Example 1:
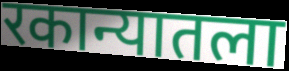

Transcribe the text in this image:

रकान्यातला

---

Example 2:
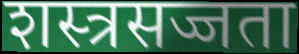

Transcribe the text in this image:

शस्त्रसज्जता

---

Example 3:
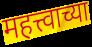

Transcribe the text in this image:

महत्त्वाच्या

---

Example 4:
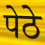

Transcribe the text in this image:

पेठे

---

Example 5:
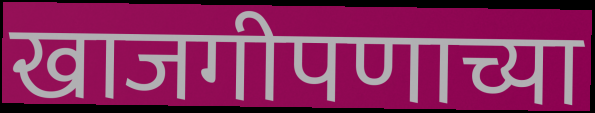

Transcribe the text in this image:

खाजगीपणाच्या